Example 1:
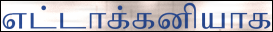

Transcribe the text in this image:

எட்டாக்கனியாக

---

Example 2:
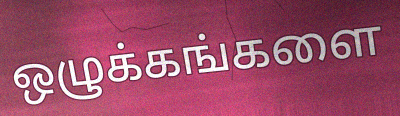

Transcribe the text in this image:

ஒழுக்கங்களை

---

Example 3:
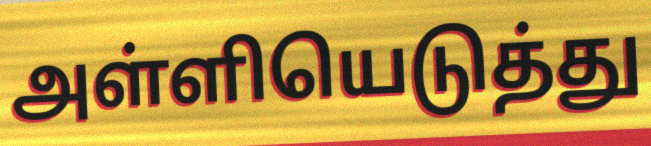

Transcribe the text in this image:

அள்ளியெடுத்து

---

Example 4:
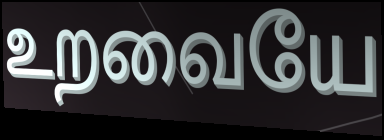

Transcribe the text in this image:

உறவையே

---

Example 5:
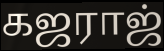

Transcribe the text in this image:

கஜராஜ்